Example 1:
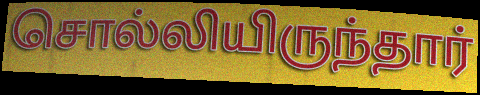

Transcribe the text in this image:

சொல்லியிருந்தார்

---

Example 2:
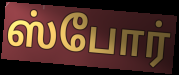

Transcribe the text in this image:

ஸ்போர்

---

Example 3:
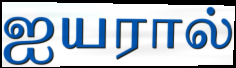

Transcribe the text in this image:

ஐயரால்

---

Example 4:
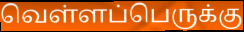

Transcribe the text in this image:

வெள்ளப்பெருக்கு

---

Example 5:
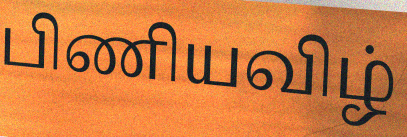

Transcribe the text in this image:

பிணியவிழ்